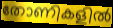
തോണികളിൽ